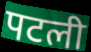
पटली